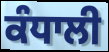
ਕੰਧਾਲੀ